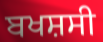
ਬਖਸ਼ਸੀ